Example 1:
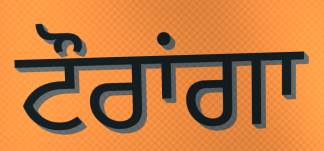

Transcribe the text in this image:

ਟੌਰਾਂਗਾ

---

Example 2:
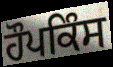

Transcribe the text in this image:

ਹੌਪਕਿੰਸ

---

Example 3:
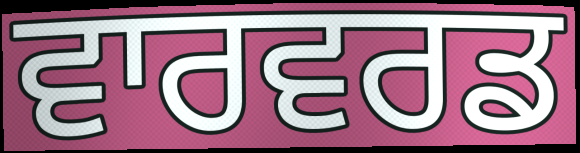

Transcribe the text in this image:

ਵਾਰਵਰਡ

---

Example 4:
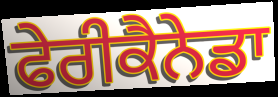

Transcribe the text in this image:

ਫੇਰੀਕੈਨੇਡਾ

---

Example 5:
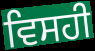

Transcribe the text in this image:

ਵਿਸਹੀ